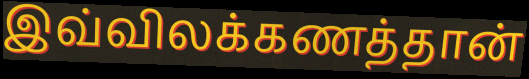
இவ்விலக்கணத்தான்